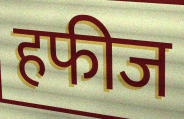
हफीज